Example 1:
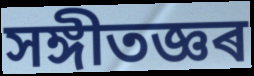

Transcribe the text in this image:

সঙ্গীতজ্ঞৰ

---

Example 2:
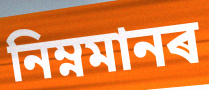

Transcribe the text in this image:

নিম্নমানৰ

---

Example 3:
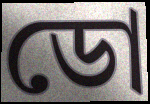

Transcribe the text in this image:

ডো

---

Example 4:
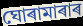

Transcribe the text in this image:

ঘোৰামাৰাৰ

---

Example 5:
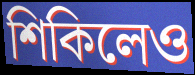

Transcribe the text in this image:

শিকিলেও